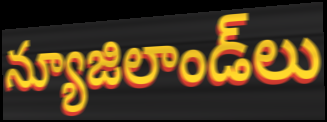
న్యూజిలాండ్‌లు